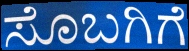
ಸೊಬಗಿಗೆ